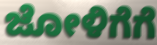
ಜೋಳಿಗೆಗೆ